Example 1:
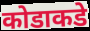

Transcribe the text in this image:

कोडाकडे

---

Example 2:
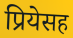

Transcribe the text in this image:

प्रियेसह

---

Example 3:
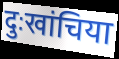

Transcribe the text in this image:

दुःखांचिया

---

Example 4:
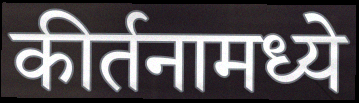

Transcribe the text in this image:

कीर्तनामध्ये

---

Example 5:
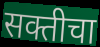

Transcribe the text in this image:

सक्तीचा